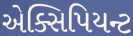
એક્સિપિયન્ટ